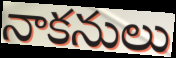
నాకనులు